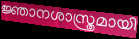
ജ്ഞാനശാസ്ത്രമായി